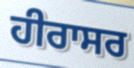
ਹੀਰਾਸਰ